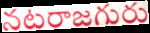
నటరాజగురు